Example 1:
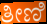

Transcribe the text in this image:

ತೀಣಿ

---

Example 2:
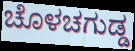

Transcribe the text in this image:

ಚೊಳಚಗುಡ್ಡ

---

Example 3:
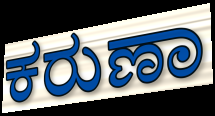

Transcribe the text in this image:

ಕರುಣಾ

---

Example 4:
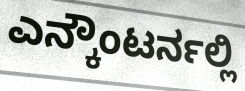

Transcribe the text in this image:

ಎನ್ಕೌಂಟರ್ನಲ್ಲಿ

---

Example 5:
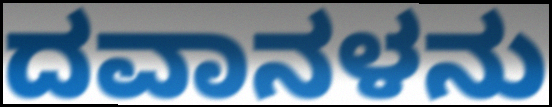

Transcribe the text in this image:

ದವಾನಳನು